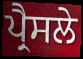
ਪ੍ਰੈਸਲੇ